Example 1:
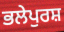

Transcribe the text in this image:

ਭਲੇਪੁਰਸ਼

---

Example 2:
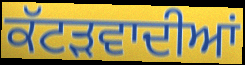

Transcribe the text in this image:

ਕੱਟੜਵਾਦੀਆਂ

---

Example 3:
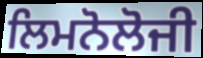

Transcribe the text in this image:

ਲਿਮਨੋਲੋਜੀ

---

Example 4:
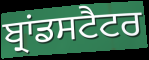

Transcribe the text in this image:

ਬ੍ਰਾਂਡਸਟੈਟਰ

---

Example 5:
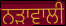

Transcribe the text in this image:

ਨੜਾਵਾਲੀ